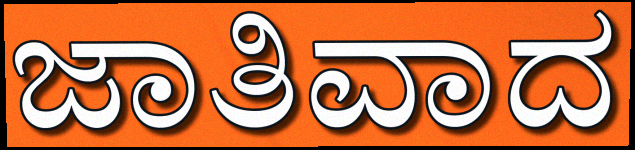
ಜಾತಿವಾದ